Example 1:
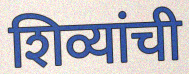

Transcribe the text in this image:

शिव्यांची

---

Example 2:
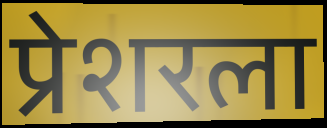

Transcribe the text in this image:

प्रेशरला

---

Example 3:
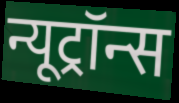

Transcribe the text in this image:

न्यूट्रॉन्स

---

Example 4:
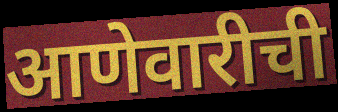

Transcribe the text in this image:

आणेवारीची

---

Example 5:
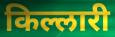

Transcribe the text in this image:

किल्लारी